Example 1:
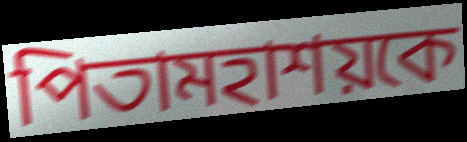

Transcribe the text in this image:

পিতামহাশয়কে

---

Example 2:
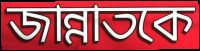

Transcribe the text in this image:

জান্নাতকে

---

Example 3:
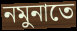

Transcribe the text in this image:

নমুনাতে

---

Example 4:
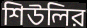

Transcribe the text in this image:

শিউলির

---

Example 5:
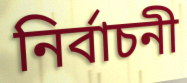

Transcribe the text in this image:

নির্বাচনী